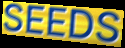
SEEDS